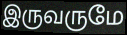
இருவருமே